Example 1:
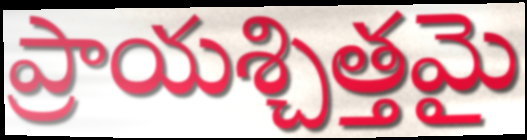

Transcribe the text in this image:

ప్రాయశ్చిత్తమై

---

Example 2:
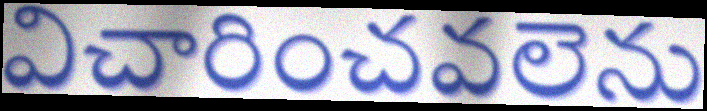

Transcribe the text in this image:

విచారించవలెను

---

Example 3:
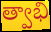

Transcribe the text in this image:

త్వాభి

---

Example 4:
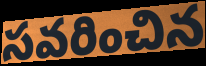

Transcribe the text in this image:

సవరించిన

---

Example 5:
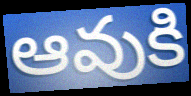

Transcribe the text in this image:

ఆవుకి